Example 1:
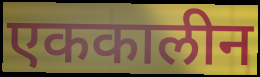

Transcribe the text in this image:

एककालीन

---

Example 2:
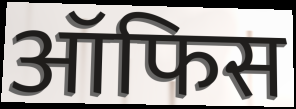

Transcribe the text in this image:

ऑफिस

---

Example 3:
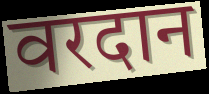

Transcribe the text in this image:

वरदान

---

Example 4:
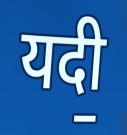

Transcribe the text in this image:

यदी॒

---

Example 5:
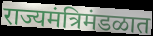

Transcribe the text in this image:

राज्यमंत्रिमंडळात